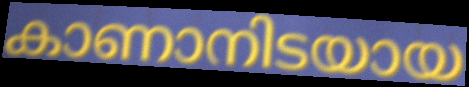
കാണാനിടയായ